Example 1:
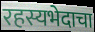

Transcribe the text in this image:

रहस्यभेदाचा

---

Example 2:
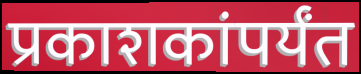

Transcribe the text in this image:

प्रकाशकांपर्यंत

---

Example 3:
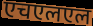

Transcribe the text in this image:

एचएलएल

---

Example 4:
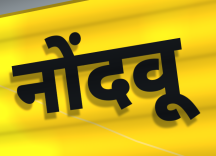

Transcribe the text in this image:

नोंदवू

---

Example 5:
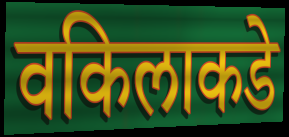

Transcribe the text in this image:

वकिलाकडे